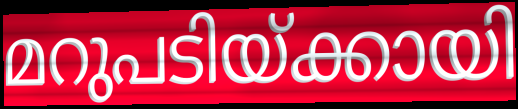
മറുപടിയ്ക്കായി